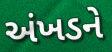
અંખડને